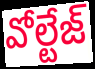
వోల్టేజ్